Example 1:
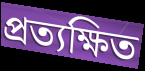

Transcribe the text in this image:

প্রত্যক্ষিত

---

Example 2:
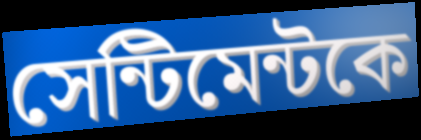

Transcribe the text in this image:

সেন্টিমেন্টকে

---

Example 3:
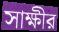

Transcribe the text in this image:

সাক্ষীর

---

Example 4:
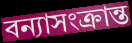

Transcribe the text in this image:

বন্যাসংক্রান্ত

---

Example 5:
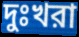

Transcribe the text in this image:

দুঃখরা